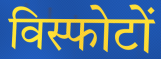
विस्फोटों